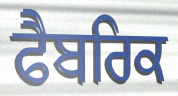
ਫੈਬਰਿਕ